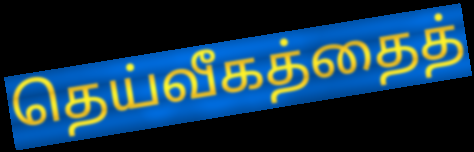
தெய்வீகத்தைத்